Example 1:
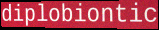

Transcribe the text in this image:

diplobiontic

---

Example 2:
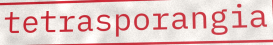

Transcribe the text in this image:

tetrasporangia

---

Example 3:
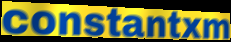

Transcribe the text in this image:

constantxm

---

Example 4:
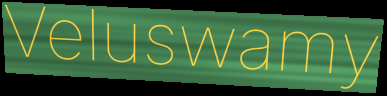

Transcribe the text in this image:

Veluswamy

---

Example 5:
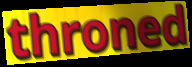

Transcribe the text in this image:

throned